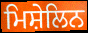
ਮਿਸ਼ੇਲਿਨ